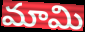
మామి